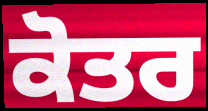
ਕੋਤਰ